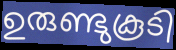
ഉരുണ്ടുകൂടി